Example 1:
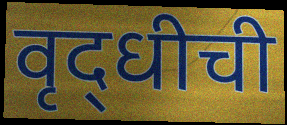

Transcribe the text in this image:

वृद्धीची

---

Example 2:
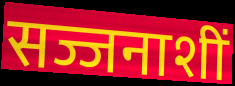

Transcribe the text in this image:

सज्जनाशीं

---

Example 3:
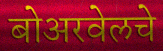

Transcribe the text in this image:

बोअरवेलचे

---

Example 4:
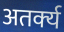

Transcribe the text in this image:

अतर्क्‍य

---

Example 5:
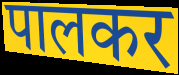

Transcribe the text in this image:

पालकर